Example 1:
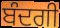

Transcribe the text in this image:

ਬੰਦਗੀ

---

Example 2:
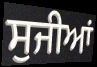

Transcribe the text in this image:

ਸੁਜੀਆਂ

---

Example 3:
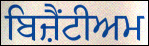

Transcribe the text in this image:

ਬਿਜ਼ੈਂਟੀਅਮ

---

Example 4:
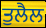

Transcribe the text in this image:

ਤੁਲੈਲ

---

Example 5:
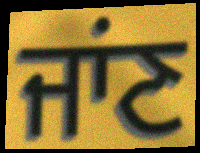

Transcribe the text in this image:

ਜਾਂਣ